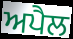
ਅਪੈਲ